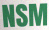
NSM